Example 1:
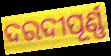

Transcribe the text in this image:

ଦରଦୀପୂର୍ଣ୍ଣ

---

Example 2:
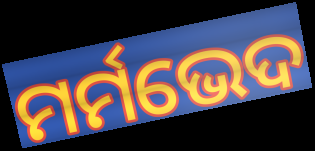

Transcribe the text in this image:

ମର୍ମଭେଦ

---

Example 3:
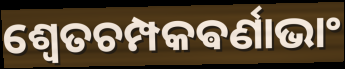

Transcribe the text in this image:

ଶ୍ଵେତଚମ୍ପକଵର୍ଣାଭାଂ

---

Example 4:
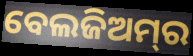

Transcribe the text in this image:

ବେଲଜିଅମ୍‌ର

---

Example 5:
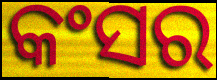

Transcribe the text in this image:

କଂସର